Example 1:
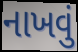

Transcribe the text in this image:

નાખવું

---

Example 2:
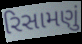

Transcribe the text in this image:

રિસામણું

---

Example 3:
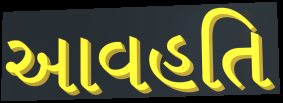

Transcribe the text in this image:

આવહતિ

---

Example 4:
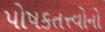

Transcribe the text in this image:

પોષકતત્ત્વોનો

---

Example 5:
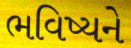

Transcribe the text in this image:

ભવિષ્યને